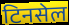
टिनसेल